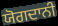
ਯੋਗਦਾਨੀ